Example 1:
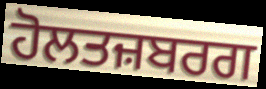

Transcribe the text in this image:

ਹੋਲਤਜ਼ਬਰਗ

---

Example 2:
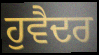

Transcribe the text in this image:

ਹੁਵੈਦਰ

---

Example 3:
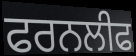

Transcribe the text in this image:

ਫਰਨਲੀਫ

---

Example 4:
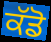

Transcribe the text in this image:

ਕੱਡੋ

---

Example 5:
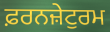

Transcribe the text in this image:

ਫ਼ਰਨਜ਼ੇਟੁਰਮ